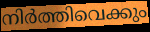
നിർത്തിവെക്കും